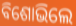
ବିଶୋଭିଲେ